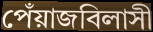
পেঁয়াজবিলাসী